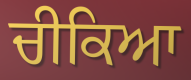
ਚੀਕਿਆ